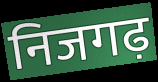
निजगढ़